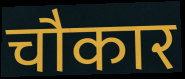
चौकार